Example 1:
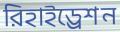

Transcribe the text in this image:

রিহাইড্রেশন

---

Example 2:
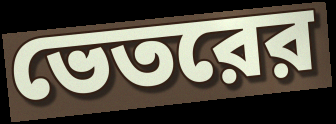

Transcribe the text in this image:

ভেতরের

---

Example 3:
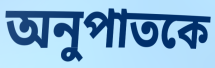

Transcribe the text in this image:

অনুপাতকে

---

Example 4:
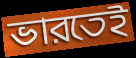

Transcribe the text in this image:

ভারতেই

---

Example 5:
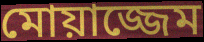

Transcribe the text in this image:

মোয়াজ্জেম